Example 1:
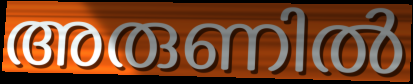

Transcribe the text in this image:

അരുണിൽ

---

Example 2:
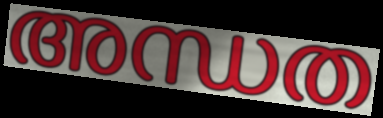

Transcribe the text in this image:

അന്ധത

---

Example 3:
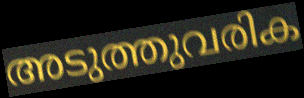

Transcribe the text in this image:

അടുത്തുവരിക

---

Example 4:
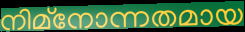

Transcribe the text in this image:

നിമ്നോന്നതമായ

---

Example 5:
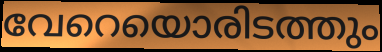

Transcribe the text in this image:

വേറെയൊരിടത്തും